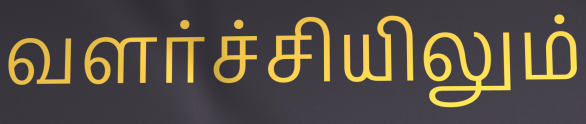
வளர்ச்சியிலும்